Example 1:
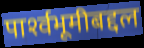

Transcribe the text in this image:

पार्श्वभूमीबद्दल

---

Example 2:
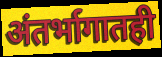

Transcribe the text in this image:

अंतर्भागातही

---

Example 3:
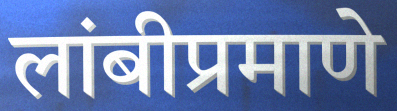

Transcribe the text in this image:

लांबीप्रमाणे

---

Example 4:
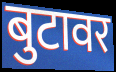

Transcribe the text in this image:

बुटावर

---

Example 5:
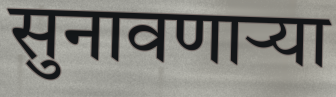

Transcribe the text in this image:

सुनावणाऱ्या